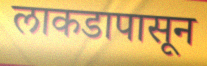
लाकडापासून